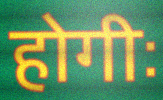
होगीः